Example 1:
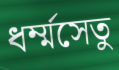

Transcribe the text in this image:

ধর্ম্মসেতু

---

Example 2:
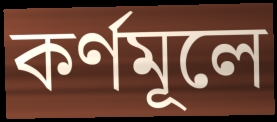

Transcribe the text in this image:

কর্ণমূলে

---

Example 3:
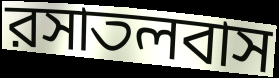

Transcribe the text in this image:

রসাতলবাস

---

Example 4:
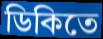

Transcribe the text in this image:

ডিকিতে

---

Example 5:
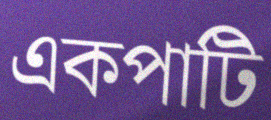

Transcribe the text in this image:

একপাটি